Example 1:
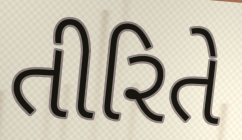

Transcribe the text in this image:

તીરિતે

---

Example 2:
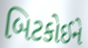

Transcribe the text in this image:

બિટકોઈને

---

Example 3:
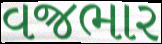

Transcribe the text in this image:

વજ્રભાર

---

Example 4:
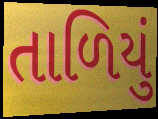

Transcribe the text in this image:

તાળિયું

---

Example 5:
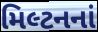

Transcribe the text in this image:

મિલ્ટનનાં